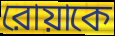
রোয়াকে